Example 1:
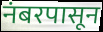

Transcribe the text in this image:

नंबरपासून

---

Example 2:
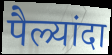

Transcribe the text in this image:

पैल्यांदा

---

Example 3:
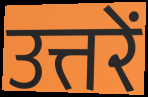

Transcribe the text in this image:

उत्तरें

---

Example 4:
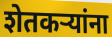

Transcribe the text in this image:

शेतकर्‍यांना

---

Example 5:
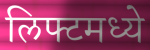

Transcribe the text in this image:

लिफ्टमध्ये